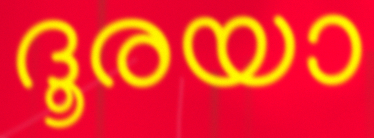
ദൂരയാ